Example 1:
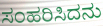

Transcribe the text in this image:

ಸಂಹರಿಸಿದನು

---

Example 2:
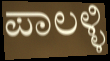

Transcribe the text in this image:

ಪಾಲಳ್ಳಿ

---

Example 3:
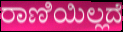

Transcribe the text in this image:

ರಾಣಿಯಿಲ್ಲದೆ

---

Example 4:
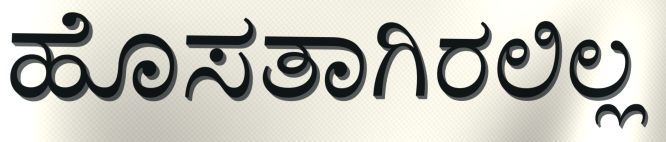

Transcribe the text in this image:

ಹೊಸತಾಗಿರಲಿಲ್ಲ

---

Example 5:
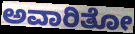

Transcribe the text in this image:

ಅವಾರಿತೋ